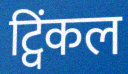
ट्विंकल